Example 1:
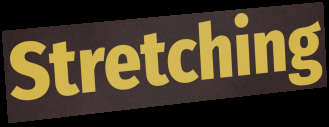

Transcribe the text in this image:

Stretching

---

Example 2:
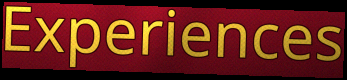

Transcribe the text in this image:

Experiences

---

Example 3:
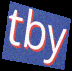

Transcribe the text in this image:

tby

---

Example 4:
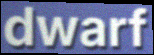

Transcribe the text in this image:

dwarf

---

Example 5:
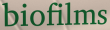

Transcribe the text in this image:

biofilms